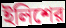
ইলিশের